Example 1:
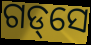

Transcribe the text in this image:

ଗଡ୍‌ସେ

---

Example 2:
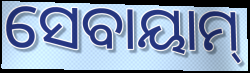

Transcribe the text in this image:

ସେବାୟାମ୍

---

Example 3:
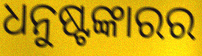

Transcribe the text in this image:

ଧନୁଷ୍ଟଙ୍କାରର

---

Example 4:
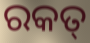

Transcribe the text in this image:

ରକତ୍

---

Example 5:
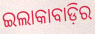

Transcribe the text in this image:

ଇଲାକାବାଡ଼ିର